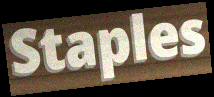
Staples